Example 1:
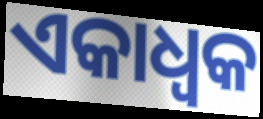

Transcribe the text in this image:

ଏକାଧ୍ଵକ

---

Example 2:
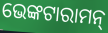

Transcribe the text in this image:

ଭେଙ୍କଟାରାମନ୍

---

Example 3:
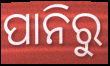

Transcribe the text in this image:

ପାନିରୁ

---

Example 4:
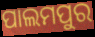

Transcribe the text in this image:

ପାଲମପୁର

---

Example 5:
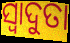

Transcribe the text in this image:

ସ୍ୱାଦୁତା